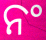
ନଂ